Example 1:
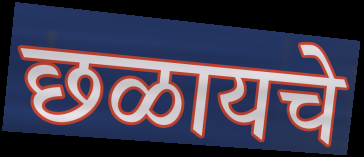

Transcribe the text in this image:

छळायचे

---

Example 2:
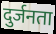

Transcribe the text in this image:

दुर्जनता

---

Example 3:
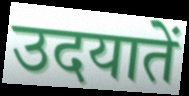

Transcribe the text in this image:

उदयातें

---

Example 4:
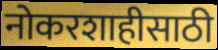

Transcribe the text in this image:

नोकरशाहीसाठी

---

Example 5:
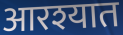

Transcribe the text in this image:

आरश्यात